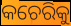
କଚେରିକୁ